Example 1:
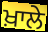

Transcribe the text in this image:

ਖ਼ਾਲੇ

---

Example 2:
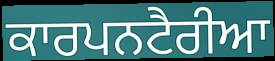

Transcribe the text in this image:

ਕਾਰਪਨਟੈਰੀਆ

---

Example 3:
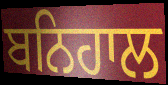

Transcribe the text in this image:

ਬਨਿਹਾਲ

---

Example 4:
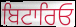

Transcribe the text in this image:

ਬਿਟਾਰਿਓ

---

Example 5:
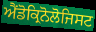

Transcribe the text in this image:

ਐਂਡੋਕ੍ਰਿਨੋਲੋਜਿਸਟ